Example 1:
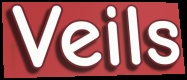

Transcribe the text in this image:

Veils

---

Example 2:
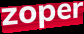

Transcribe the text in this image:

zoper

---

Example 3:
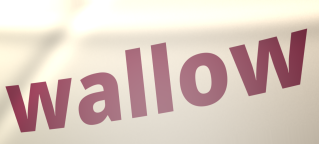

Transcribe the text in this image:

wallow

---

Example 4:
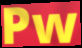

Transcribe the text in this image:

Pw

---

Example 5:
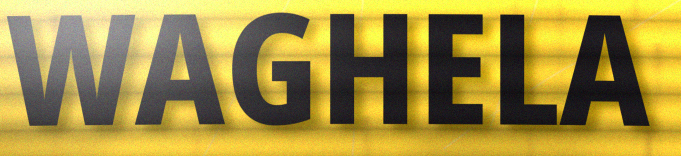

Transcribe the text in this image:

WAGHELA